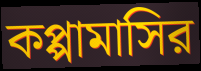
কপ্পামাসির